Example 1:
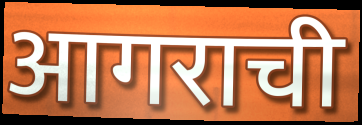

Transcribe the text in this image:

आगराची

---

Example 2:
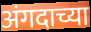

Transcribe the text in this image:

अंगदाच्या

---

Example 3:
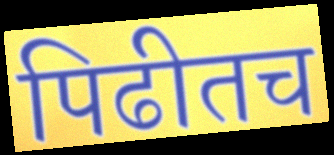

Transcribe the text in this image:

पिढीतच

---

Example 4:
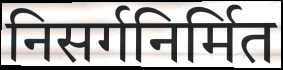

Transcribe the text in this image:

निसर्गनिर्मित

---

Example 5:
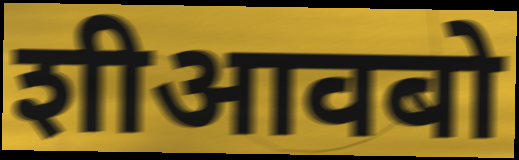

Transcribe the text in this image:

शीआवबो